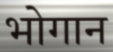
भोगान